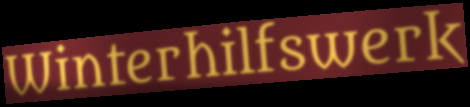
Winterhilfswerk